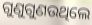
ଗୁଣୁଗୁଣଉଥିଲେ